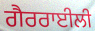
ਗੈਰਰਾਈਲੀ